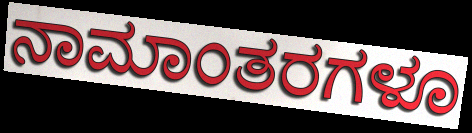
ನಾಮಾಂತರಗಳೂ